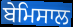
ਬੇਮਿਸਾਲ